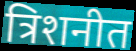
त्रिशनीत